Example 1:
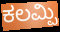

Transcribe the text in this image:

ಕಲಮ್ಪಿ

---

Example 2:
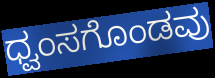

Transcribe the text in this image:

ಧ್ವಂಸಗೊಂಡವು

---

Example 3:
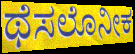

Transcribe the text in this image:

ಥೆಸಲೊನೀಕ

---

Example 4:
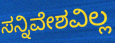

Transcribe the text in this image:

ಸನ್ನಿವೇಶವಿಲ್ಲ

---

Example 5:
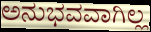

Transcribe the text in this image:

ಅನುಭವವಾಗಿಲ್ಲ